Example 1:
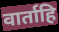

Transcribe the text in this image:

वार्ताहि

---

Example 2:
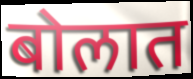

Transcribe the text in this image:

बोलात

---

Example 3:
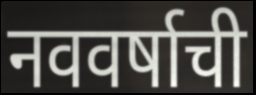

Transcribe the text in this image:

नववर्षाची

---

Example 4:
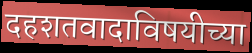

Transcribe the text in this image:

दहशतवादाविषयीच्या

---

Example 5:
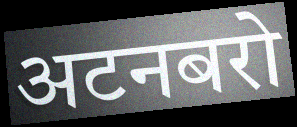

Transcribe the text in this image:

अटनबरो